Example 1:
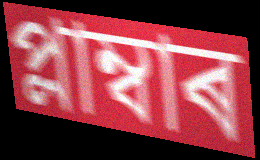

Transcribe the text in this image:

প্লাম্বাৰ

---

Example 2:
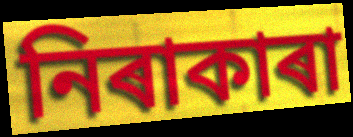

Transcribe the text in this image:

নিৰাকাৰা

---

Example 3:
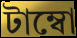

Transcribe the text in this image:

টাম্বো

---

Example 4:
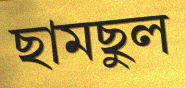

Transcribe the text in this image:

ছামছুল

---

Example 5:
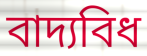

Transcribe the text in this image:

বাদ্যবিধ